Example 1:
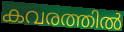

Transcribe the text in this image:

കവരത്തിൽ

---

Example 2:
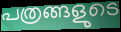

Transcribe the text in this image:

പത്രങ്ങളുടെ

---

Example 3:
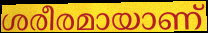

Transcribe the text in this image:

ശരീരമായാണ്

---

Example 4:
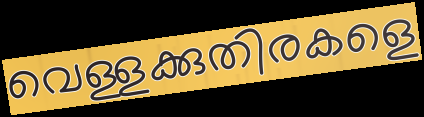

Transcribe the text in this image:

വെള്ളക്കുതിരകളെ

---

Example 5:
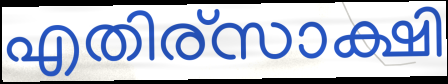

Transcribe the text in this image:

എതിര്സാക്ഷി